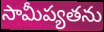
సామీప్యతను